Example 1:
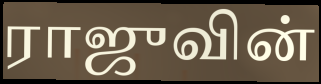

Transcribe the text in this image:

ராஜுவின்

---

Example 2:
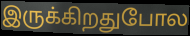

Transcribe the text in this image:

இருக்கிறதுபோல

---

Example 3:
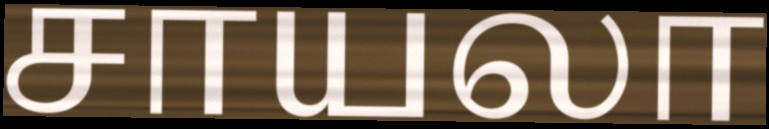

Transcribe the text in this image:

சாயலா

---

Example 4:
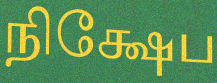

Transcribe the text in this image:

நிக்ஷேப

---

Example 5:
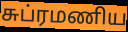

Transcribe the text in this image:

சுப்ரமணிய